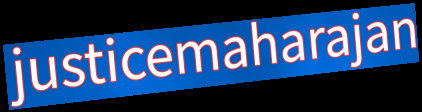
justicemaharajan